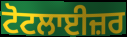
ਟੋਟਲਾਈਜ਼ਰ